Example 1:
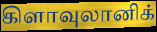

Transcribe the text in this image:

கிளாவுலானிக்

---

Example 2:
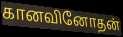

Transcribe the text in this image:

கானவினோதன்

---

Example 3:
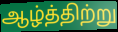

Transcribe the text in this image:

ஆழ்த்திற்று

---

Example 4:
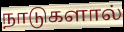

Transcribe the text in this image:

நாடுகளால்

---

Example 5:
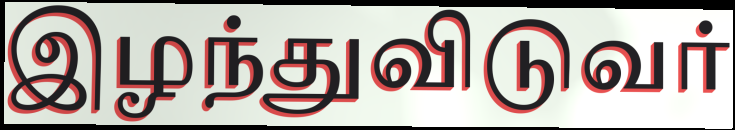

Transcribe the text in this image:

இழந்துவிடுவர்